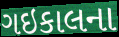
ગઇકાલના